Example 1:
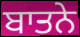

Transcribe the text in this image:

ਬਾਤਨੇ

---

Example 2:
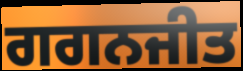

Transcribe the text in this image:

ਗਗਨਜੀਤ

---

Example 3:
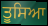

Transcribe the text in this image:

ਤੂਸਿਆ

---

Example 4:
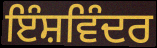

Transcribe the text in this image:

ਇੰਸ਼ਵਿੰਦਰ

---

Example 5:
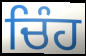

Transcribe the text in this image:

ਚਿੰਹ